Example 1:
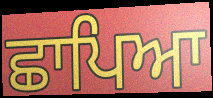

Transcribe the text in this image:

ਛਾਪਿਆ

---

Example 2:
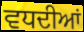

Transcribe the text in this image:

ਵਧਦੀਆਂ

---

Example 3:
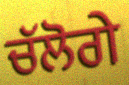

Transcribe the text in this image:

ਚੱਲੋਗੇ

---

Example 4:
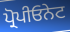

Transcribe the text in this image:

ਪ੍ਰੋਪੀਓਨੇਟ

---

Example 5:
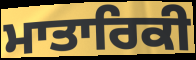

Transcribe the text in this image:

ਮਾਤਾਰਿਕੀ